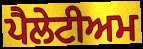
ਪੈਲੇਟੀਅਮ